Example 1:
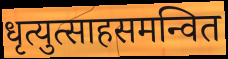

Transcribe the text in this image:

धृत्युत्साहसमन्वित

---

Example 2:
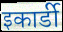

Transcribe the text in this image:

इकार्डी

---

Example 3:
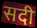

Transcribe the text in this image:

सदी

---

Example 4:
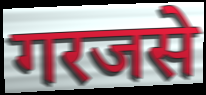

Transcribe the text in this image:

गरजसे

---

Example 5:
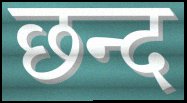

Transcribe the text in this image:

छन्द